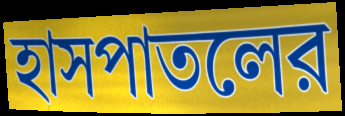
হাসপাতলের